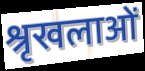
श्रृखलाओं